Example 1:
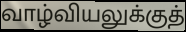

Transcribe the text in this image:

வாழ்வியலுக்குத்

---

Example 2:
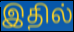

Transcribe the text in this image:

இதில்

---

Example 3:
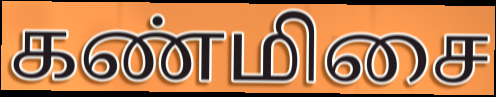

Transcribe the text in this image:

கண்மிசை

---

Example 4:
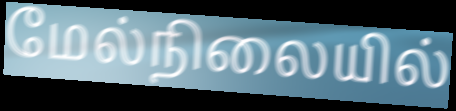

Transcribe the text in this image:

மேல்நிலையில்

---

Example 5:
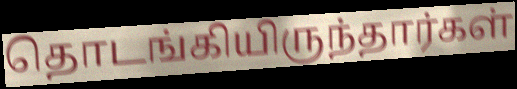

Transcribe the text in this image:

தொடங்கியிருந்தார்கள்